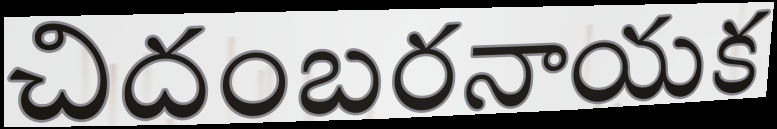
చిదంబరనాయక